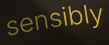
sensibly